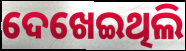
ଦେଖେଇଥିଲି